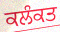
ਕਲੰਕਤ